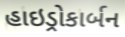
હાઇડ્રોકાર્બન